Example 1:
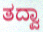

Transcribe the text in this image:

ತದ್ವಾ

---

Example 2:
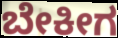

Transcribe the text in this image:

ಬೇಕೀಗ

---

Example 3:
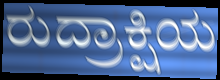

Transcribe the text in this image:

ರುದ್ರಾಕ್ಷಿಯ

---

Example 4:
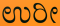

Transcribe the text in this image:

ಉರೀ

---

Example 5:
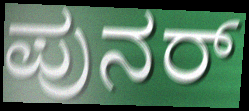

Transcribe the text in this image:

ಪುನರ್